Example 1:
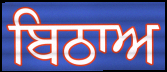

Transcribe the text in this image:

ਬਿਠਾਅ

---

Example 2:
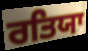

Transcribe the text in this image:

ਰਤਿਯਾ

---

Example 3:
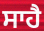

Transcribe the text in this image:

ਸਾਹੈ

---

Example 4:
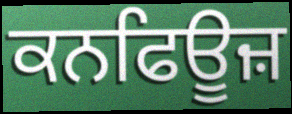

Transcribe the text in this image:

ਕਨਫਿਊਜ਼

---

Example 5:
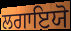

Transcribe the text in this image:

ਲਗਾਇਯੋ